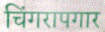
चिंगरापगार